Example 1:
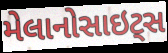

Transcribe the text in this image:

મેલાનોસાઇટ્સ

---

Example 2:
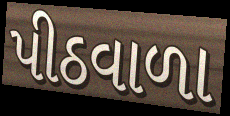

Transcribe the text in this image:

પીઠવાળા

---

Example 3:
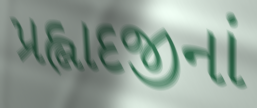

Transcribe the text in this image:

પ્રહ્લાદજીનાં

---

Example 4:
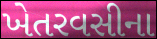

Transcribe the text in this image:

ખેતરવસીના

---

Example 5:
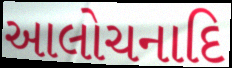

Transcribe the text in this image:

આલોચનાદિ